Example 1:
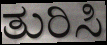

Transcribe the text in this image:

ತುರಿಸಿ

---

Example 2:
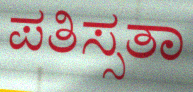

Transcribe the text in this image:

ಪತಿಸ್ಸತಾ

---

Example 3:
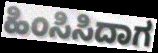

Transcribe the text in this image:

ಹಿಂಸಿಸಿದಾಗ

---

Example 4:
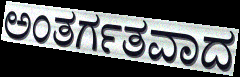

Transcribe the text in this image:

ಅಂತರ್ಗತವಾದ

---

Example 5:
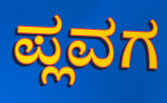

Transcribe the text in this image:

ಪ್ಲವಗ